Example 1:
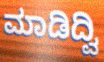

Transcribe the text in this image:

ಮಾಡಿದ್ವಿ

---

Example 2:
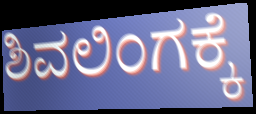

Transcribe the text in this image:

ಶಿವಲಿಂಗಕ್ಕೆ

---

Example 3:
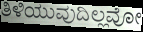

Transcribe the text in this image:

ತಿಳಿಯುವುದಿಲ್ಲವೋ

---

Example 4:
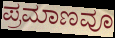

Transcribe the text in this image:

ಪ್ರಮಾಣವೂ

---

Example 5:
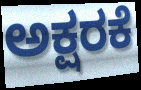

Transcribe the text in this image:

ಅಕ್ಷರಕೆ